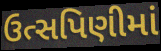
ઉત્સપિણીમાં